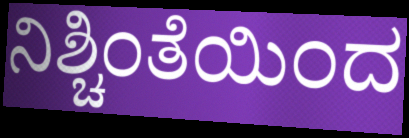
ನಿಶ್ಚಿಂತೆಯಿಂದ